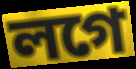
লগে